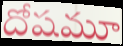
దోషమూ